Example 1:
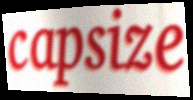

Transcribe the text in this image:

capsize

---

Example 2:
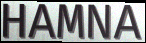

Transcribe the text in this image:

HAMNA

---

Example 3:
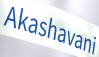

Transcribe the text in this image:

Akashavani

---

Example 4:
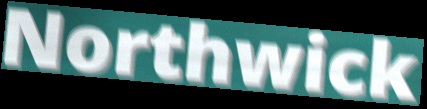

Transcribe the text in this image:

Northwick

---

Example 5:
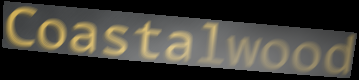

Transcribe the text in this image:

Coastalwood